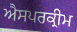
ਐਸਪਰਕ੍ਰੀਮ